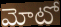
మోటో